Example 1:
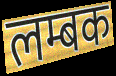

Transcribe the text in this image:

लम्बक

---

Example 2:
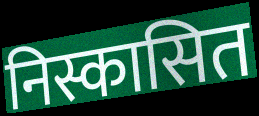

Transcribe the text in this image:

निस्कासित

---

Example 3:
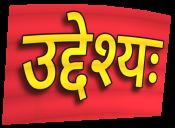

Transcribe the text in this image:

उद्देश्यः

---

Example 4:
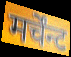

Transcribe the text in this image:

मर्चेंन्ट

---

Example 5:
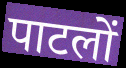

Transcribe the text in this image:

पाटलों